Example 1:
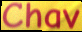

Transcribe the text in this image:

Chav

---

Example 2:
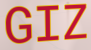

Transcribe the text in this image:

GIZ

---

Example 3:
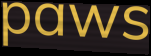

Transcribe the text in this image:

paws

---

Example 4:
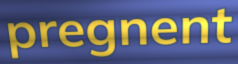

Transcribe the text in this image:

pregnent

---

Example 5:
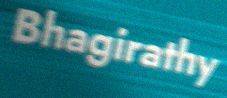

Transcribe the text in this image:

Bhagirathy